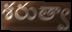
శరుత్వా